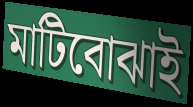
মাটিবোঝাই